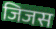
जिजस